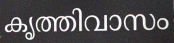
കൃത്തിവാസം